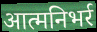
आत्मनिभर्र